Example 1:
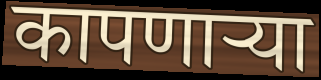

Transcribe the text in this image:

कापणाऱ्या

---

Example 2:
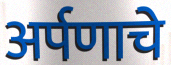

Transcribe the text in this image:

अर्पणाचे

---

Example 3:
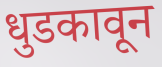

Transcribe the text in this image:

धुडकावून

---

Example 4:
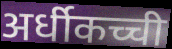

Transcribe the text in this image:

अर्धीकच्ची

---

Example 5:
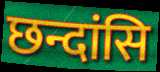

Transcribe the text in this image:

छन्दांसि